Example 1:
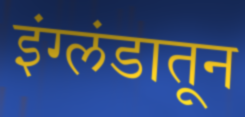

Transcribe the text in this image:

इंग्लंडातून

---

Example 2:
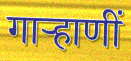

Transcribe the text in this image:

गाऱ्हाणीं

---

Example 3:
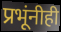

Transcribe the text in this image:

प्रभूंनीही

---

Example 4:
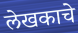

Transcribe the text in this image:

लेखकाचे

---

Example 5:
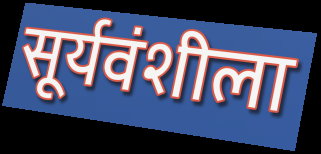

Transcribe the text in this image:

सूर्यवंशीला